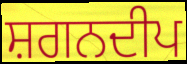
ਸ਼ਗਨਦੀਪ